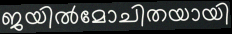
ജയിൽമോചിതയായി